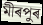
মীৰপুৰ